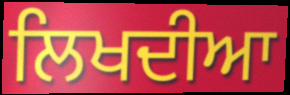
ਲਿਖਦੀਆ